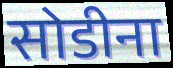
सोडीना